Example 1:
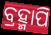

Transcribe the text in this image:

ବ୍ରହ୍ମାପି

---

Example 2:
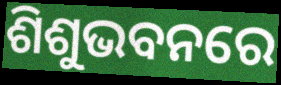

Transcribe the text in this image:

ଶିଶୁଭବନରେ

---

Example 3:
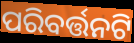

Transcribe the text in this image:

ପରିବର୍ତ୍ତନଟି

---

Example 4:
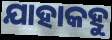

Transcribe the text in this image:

ଯାହାକହୁ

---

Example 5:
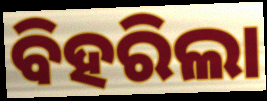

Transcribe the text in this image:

ବିହରିଲା